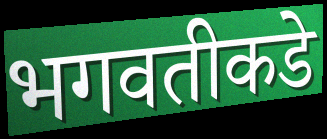
भगवतीकडे